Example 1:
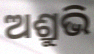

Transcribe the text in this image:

ଅଶ୍ରୁଭି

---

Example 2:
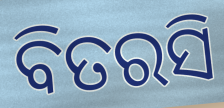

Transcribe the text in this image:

ବିତରସି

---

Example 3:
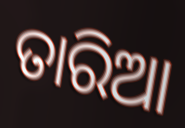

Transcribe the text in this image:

ତାରିଆ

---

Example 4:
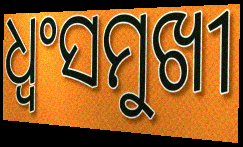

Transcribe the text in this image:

ଧ୍ୱଂସମୁଖୀ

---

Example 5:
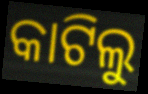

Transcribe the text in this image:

କାଟିଲୁ